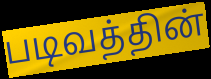
படிவத்தின்